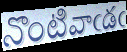
నొంటివాఁడఁ